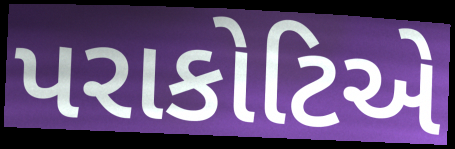
પરાકોટિએ